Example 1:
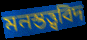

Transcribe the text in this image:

মনস্তত্ত্ববিদ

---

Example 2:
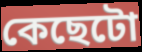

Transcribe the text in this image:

কেছেটো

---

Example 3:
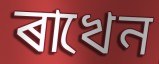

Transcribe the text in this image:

ৰাখেন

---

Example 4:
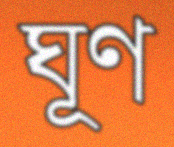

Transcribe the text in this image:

ঘূণ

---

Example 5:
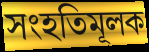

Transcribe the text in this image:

সংহতিমূলক